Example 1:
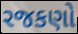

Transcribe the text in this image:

રજકણો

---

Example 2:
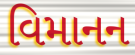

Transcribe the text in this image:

વિમાનન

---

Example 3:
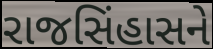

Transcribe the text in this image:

રાજસિંહાસને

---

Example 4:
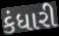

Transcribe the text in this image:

કંધારી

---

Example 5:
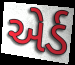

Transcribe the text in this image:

એર્ડ